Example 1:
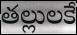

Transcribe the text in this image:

తల్లులకే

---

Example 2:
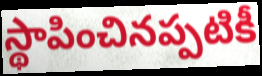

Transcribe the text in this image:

స్థాపించినప్పటికీ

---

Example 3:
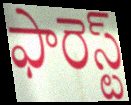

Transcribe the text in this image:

ఫారెస్ట్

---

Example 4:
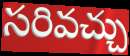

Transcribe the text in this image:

సరివచ్చు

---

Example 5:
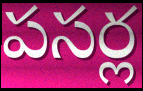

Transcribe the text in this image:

పసర్ల